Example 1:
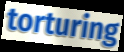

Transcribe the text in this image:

torturing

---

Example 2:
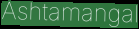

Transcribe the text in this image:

Ashtamangal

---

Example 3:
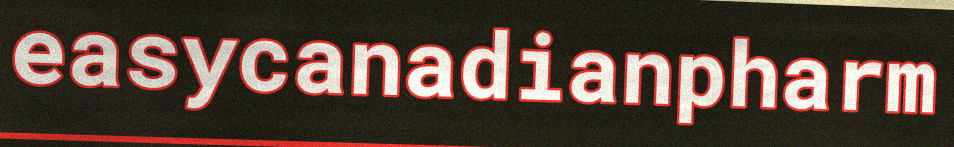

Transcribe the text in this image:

easycanadianpharm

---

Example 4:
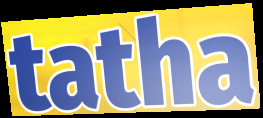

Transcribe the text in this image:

tatha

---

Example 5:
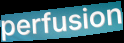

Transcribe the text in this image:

perfusion